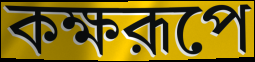
কক্ষরূপে